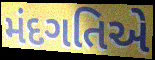
મંદગતિએ